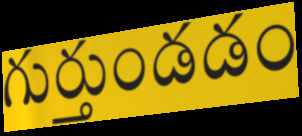
గుర్తుండడం